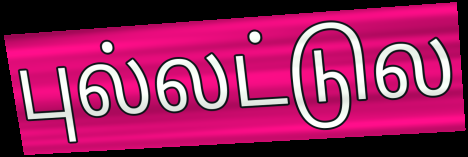
புல்லட்டுல